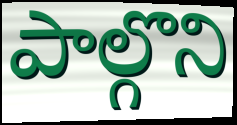
పాల్గొని